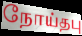
நோய்தபு